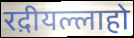
रद़ीयल्लाहो